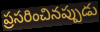
ప్రసరించినప్పుడు